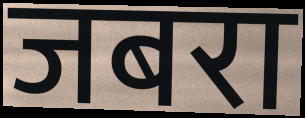
जबरा